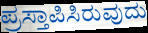
ಪ್ರಸ್ತಾಪಿಸಿರುವುದು